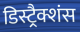
डिस्ट्रैक्शंस